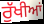
ਰੁੱਖੀਆਂ